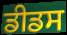
ਡੀਡਸ